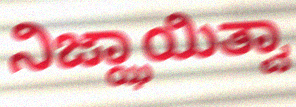
ನಿಜ್ಝಾಯಿತ್ವಾ